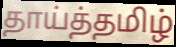
தாய்த்தமிழ்